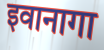
इवानागा